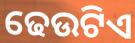
ଢେଉଟିଏ